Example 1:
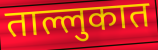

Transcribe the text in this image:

ताल्लुकात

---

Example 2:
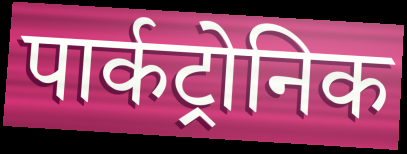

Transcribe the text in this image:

पार्कट्रोनिक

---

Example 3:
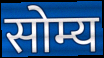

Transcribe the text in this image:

सोम्य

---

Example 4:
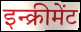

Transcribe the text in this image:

इन्क्रीमेंट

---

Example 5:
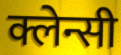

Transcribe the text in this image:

क्लेन्सी